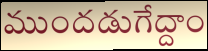
ముందడుగేద్దాం